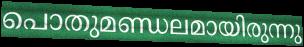
പൊതുമണ്ഡലമായിരുന്നു